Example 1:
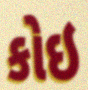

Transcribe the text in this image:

કોઇ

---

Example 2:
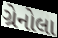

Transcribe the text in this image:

ગ્રેનોલા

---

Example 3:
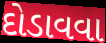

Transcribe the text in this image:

દોડાવવા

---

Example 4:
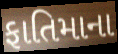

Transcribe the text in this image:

ફાતિમાના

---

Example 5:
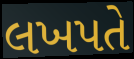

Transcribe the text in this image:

લખપતે